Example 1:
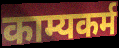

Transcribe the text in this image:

काम्यकर्म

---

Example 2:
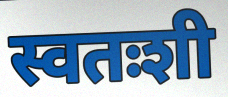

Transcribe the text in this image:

स्वतःशी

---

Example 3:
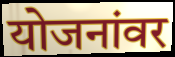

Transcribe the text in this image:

योजनांवर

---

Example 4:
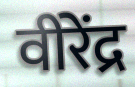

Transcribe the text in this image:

वीरेंद्र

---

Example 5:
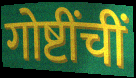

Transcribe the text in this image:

गोष्टींचीं